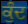
ਕੁੰਦ